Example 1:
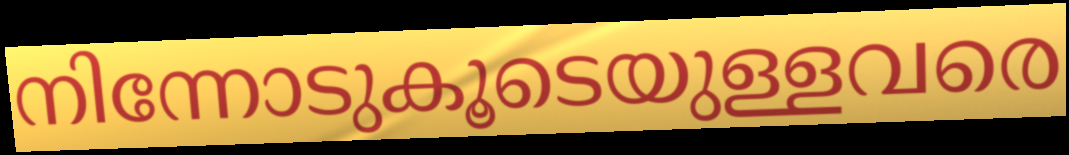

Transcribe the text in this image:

നിന്നോടുകൂടെയുള്ളവരെ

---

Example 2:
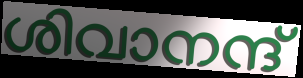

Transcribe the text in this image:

ശിവാനന്ദ്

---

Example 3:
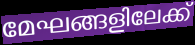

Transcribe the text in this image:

മേഘങ്ങളിലേക്ക്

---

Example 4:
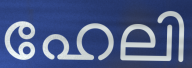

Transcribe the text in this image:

ഹേലി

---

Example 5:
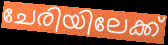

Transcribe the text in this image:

ചേരിയിലേക്ക്